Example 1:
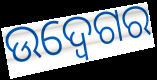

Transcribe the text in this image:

ଉଦ୍ବେଗର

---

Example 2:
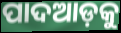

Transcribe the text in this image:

ପାଦଆଡ଼କୁ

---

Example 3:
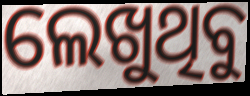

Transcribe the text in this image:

ଲେଖୁଥିବୁ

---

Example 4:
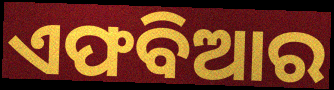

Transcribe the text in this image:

ଏଫବିଆର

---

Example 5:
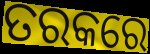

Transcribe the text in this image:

ତରକରେ